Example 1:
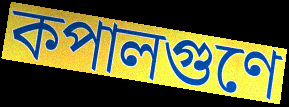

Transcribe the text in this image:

কপালগুণে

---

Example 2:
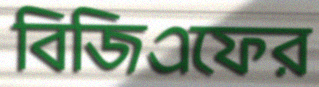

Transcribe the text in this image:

বিজিএফের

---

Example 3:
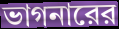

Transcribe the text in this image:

ভাগনারের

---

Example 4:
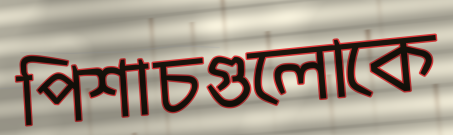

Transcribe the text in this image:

পিশাচগুলোকে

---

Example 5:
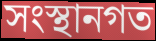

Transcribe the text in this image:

সংস্থানগত